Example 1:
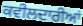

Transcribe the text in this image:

ਕਵੀਲਦਾਰੀਆਂ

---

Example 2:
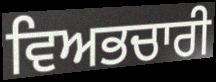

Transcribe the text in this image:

ਵਿਅਭਚਾਰੀ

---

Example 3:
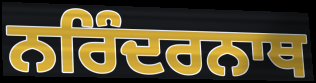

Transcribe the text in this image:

ਨਰਿੰਦਰਨਾਥ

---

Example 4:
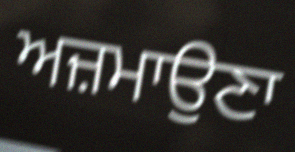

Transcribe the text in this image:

ਅਜ਼ਮਾਉਣਾ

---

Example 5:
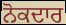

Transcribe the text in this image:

ਨੋਕਦਾਰ